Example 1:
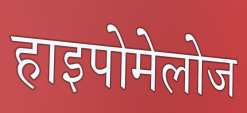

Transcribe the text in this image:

हाइपोमेलोज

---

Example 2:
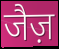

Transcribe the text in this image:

जैज़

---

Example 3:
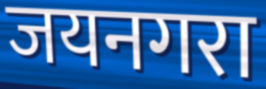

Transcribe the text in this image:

जयनगरा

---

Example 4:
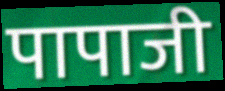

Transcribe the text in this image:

पापाजी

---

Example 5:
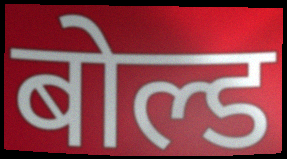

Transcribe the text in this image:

बोल्ड